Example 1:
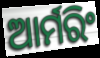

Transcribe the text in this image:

ଆର୍ମରିଂ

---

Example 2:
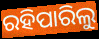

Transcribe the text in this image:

ରହିପାରିଲୁ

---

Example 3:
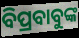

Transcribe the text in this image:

ବିପ୍ରବାବୁଙ୍କ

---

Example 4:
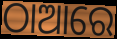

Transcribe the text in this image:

ଠାଆରେ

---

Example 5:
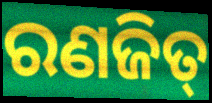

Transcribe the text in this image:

ରଣଜିତ୍